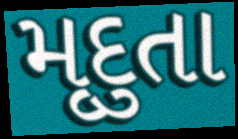
મૃદુતા